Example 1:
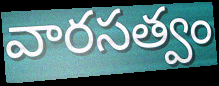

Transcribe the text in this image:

వారసత్వం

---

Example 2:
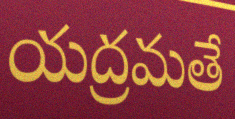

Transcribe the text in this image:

యద్రమతే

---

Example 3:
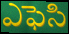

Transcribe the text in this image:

ఎఫెసి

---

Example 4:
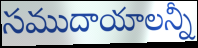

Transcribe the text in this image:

సముదాయాలన్నీ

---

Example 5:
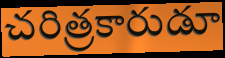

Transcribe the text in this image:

చరిత్రకారుడూ